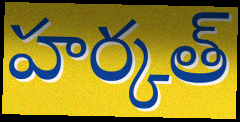
హర్కత్